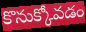
కొనుక్కోవడం